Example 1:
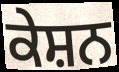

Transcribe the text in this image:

ਕੇਸ਼ਨ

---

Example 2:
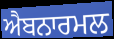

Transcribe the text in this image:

ਐਬਨਾਰਮਲ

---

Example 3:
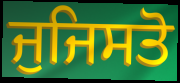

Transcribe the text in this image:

ਜੁਜਿਸਤੋ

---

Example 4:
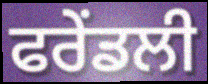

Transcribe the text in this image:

ਫਰੇਂਡਲੀ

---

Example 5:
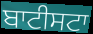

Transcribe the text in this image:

ਬਾਟੀਸਟਾ